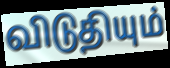
விடுதியும்